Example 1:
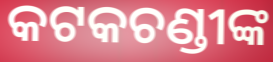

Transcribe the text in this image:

କଟକଚଣ୍ଡୀଙ୍କ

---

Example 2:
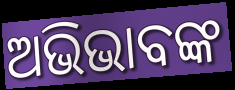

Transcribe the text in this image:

ଅଭିଭାବଙ୍କ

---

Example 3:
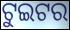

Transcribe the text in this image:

ଟୁଇଟର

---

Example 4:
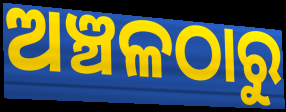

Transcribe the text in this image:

ଅଞ୍ଚଳଠାରୁ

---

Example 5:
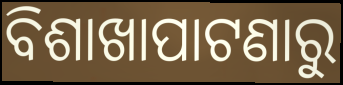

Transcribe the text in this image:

ବିଶାଖାପାଟଣାରୁ